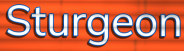
Sturgeon